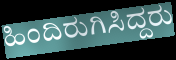
ಹಿಂದಿರುಗಿಸಿದ್ದರು